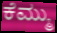
ಕೆಮ್ಮು